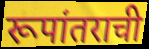
रूपांतराची